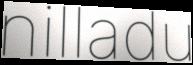
nilladu